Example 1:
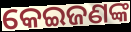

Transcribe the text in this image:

କେଇଜଣଙ୍କ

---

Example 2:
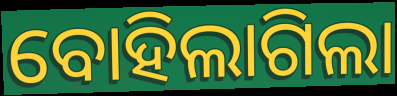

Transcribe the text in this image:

ବୋହିଲାଗିଲା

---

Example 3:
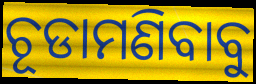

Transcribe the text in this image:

ଚୂଡାମଣିବାବୁ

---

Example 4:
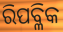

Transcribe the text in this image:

ରିପବ୍ଳିକ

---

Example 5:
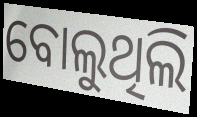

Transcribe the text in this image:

ବୋଲୁଥିଲି